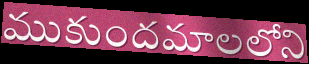
ముకుందమాలలోని